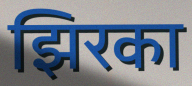
झिरका